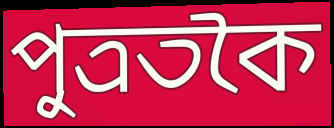
পুত্ৰতকৈ